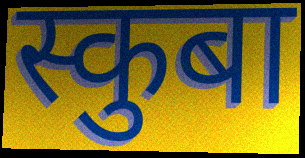
स्कुबा